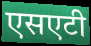
एसएटी